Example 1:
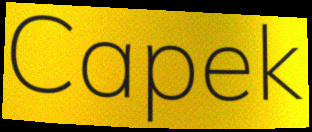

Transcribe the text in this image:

Capek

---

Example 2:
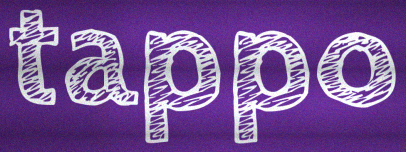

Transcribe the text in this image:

tappo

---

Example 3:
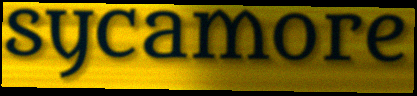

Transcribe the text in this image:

sycamore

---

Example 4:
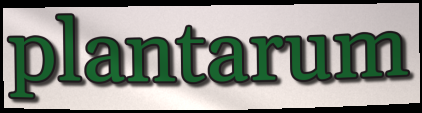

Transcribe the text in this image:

plantarum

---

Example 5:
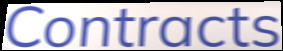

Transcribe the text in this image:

Contracts